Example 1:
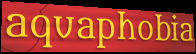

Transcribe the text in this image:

aquaphobia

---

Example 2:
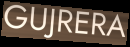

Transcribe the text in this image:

GUJRERA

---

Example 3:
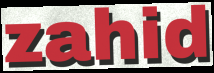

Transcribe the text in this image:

zahid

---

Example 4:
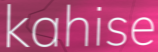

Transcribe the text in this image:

kahise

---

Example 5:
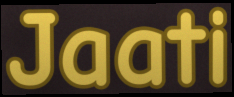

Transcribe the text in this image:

Jaati